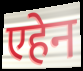
एहेन